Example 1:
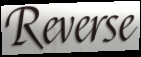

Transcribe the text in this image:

Reverse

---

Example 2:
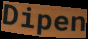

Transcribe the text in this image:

Dipen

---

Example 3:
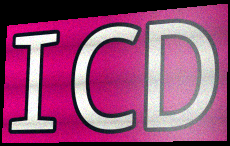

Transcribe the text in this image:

ICD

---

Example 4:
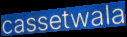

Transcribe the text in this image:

cassetwala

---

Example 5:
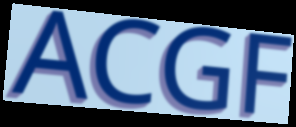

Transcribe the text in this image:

ACGF